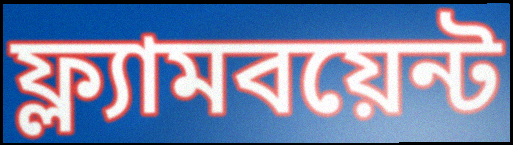
ফ্ল্যামবয়েন্ট